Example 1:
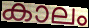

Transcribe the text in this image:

കാലം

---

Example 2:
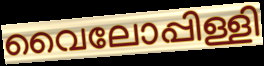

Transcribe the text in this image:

വൈലോപ്പിള്ളി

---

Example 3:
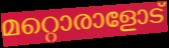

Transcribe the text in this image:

മറ്റൊരാളോട്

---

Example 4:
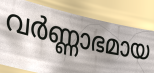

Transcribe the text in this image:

വർണ്ണാഭമായ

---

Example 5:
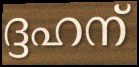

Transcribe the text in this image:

ദ്ദഹന്